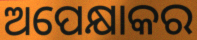
ଅପେକ୍ଷାକର